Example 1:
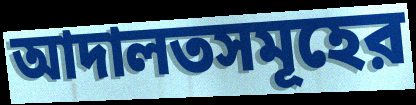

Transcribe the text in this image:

আদালতসমূহের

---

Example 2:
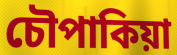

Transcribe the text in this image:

চৌপাকিয়া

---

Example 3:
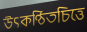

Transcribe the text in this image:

উৎকণ্ঠিতচিত্তে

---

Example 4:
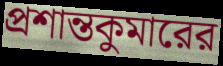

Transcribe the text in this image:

প্রশান্তকুমারের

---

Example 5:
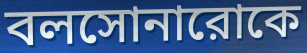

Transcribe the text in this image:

বলসোনারোকে